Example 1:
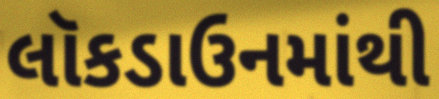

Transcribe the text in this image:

લૉકડાઉનમાંથી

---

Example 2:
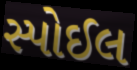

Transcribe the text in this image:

સ્પોઈલ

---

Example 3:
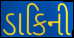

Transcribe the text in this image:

ડાકિની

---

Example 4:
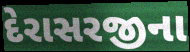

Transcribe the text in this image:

દેરાસરજીના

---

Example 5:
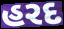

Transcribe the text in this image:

હરદ